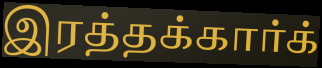
இரத்தக்கார்க்